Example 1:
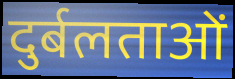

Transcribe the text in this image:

दुर्बलताओं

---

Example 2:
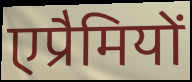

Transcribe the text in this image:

एप्रैमियों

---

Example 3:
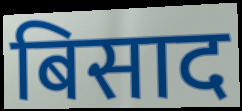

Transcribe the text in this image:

बिसाद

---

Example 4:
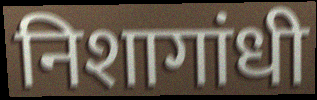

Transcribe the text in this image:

निशागांधी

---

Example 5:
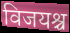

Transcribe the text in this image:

विजयश्च